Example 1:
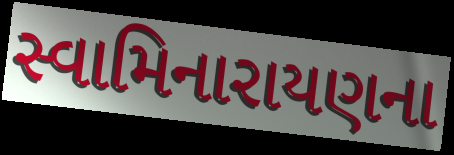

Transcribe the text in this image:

સ્વામિનારાયણના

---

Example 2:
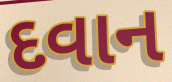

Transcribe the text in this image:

દવાન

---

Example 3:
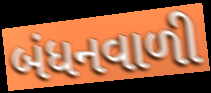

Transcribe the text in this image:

બંધનવાળી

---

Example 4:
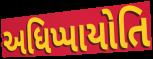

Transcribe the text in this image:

અધિપ્પાયોતિ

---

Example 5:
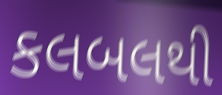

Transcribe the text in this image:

કલબલથી